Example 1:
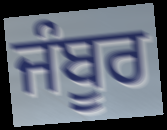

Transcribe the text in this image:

ਜੰਬੂਰ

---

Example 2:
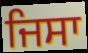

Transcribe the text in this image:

ਜਿਸਾ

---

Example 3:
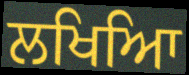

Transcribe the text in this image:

ਲਖਿਆਿ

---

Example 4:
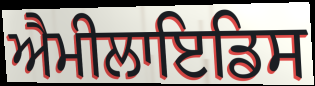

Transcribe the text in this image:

ਐਮੀਲਾਇਡਿਸ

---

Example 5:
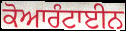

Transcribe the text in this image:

ਕੋਆਰੰਟਾਈਨ